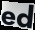
ed